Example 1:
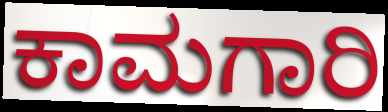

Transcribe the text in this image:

ಕಾಮಗಾರಿ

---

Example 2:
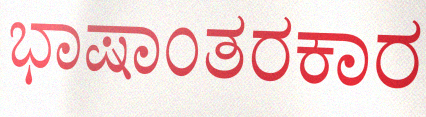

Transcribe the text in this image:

ಭಾಷಾಂತರಕಾರ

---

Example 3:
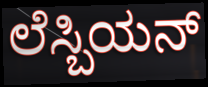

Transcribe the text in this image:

ಲೆಸ್ಬಿಯನ್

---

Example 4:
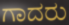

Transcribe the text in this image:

ಗಾದರು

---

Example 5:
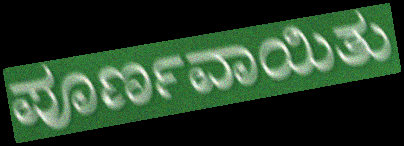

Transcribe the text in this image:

ಪೂರ್ಣವಾಯಿತು